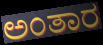
ಅಂತಾರ